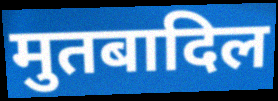
मुतबादिल